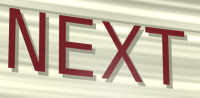
NEXT